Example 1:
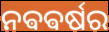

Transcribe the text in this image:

ନଵଵର୍ଷର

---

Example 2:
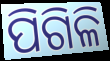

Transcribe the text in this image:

ପିଗିଳି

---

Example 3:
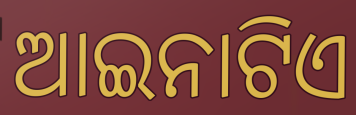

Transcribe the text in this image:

ଆଇନାଟିଏ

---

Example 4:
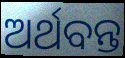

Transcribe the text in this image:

ଅର୍ଥବନ୍ତ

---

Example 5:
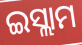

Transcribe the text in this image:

ଇସ୍ଲାମ